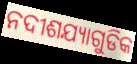
ନଦୀଶଯ୍ୟାଗୁଡିକ